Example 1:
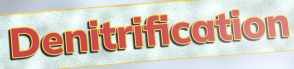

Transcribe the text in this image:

Denitrification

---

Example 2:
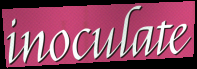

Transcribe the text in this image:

inoculate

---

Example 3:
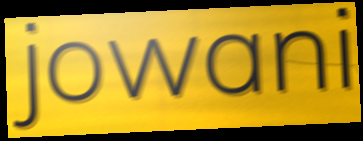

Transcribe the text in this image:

jowani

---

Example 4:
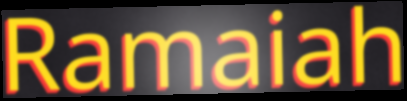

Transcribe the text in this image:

Ramaiah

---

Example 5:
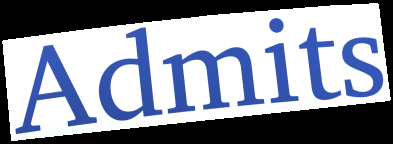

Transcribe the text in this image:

Admits